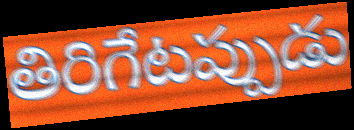
తిరిగేటప్పుడు